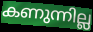
കണുന്നില്ല